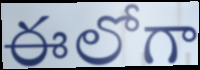
ఈలోగా